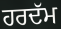
ਹਰਦੱਮ